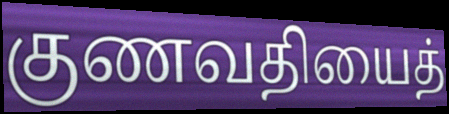
குணவதியைத்